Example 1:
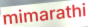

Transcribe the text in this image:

mimarathi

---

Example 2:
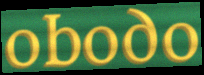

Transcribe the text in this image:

obodo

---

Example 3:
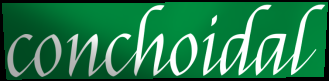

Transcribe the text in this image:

conchoidal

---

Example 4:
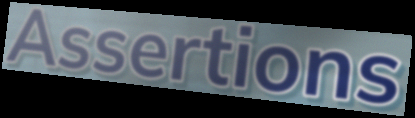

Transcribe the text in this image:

Assertions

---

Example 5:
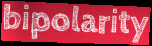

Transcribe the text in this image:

bipolarity